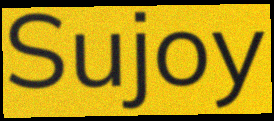
Sujoy